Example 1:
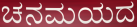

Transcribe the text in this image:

ಚನಮಯದ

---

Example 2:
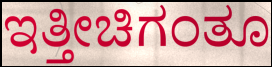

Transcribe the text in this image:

ಇತ್ತೀಚಿಗಂತೂ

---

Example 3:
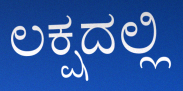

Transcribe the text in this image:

ಲಕ್ಷದಲ್ಲಿ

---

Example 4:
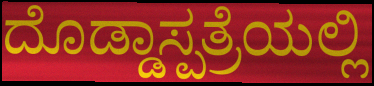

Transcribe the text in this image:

ದೊಡ್ಡಾಸ್ಪತ್ರೆಯಲ್ಲಿ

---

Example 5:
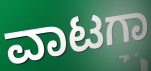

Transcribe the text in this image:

ವಾಟಗಾ